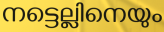
നട്ടെല്ലിനെയും